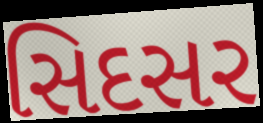
સિદસર